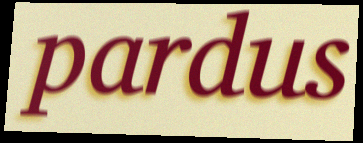
pardus